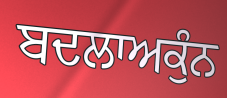
ਬਦਲਾਅਕੁੰਨ